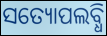
ସତ୍ୟୋପଲବ୍ଧି